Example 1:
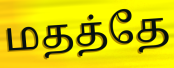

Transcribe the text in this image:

மதத்தே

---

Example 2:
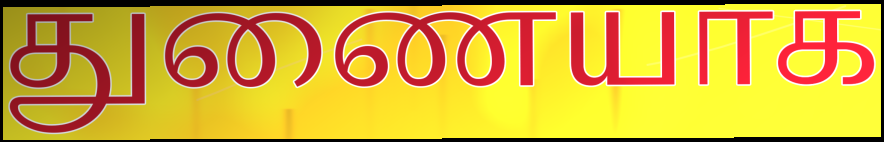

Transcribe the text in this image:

துணையாக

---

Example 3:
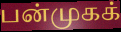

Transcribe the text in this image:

பன்முகக்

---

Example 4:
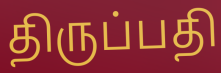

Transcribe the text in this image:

திருப்பதி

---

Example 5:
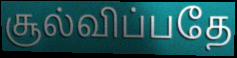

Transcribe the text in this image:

சூல்விப்பதே